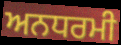
ਅਨਧਰਮੀ